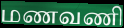
மணவணி